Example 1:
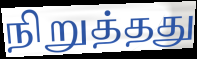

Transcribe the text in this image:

நிறுத்தது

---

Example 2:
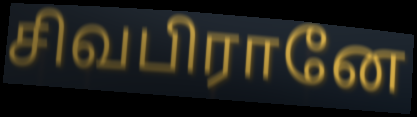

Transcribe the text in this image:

சிவபிரானே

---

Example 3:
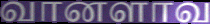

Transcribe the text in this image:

வானளாவ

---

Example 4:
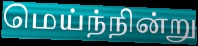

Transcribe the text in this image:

மெய்ந்நின்று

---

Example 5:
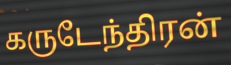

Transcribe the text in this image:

கருடேந்திரன்